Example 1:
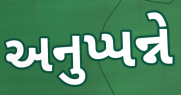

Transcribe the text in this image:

અનુપ્પન્ને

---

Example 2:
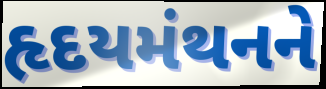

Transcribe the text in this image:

હૃદયમંથનને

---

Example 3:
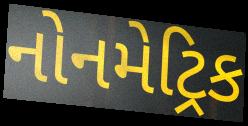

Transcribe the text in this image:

નોનમેટ્રિક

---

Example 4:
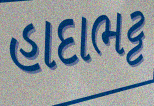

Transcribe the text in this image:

હાદાભટ્ટ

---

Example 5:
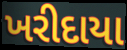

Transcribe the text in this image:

ખરીદાયા